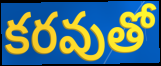
కరవుతో